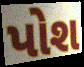
પોશ